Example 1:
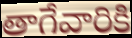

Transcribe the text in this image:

తాగేవారికి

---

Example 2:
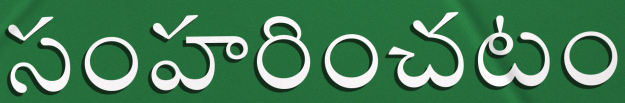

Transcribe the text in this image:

సంహరించటం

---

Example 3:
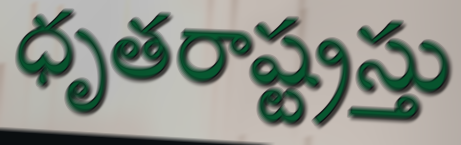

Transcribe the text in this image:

ధృతరాష్ట్రస్తు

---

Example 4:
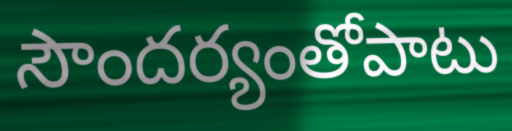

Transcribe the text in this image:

సౌందర్యంతోపాటు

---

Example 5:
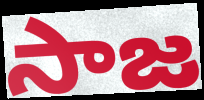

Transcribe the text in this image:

సాజ